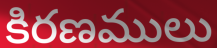
కిరణములు